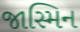
જાસ્મિન